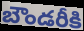
బౌండరీకి